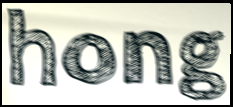
hong